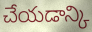
చేయడాన్కి